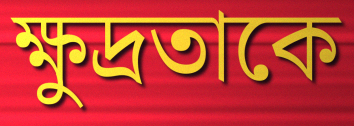
ক্ষুদ্রতাকে